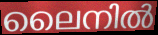
ലൈനിൽ